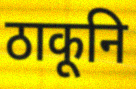
ठाकूनि